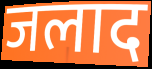
जलाद